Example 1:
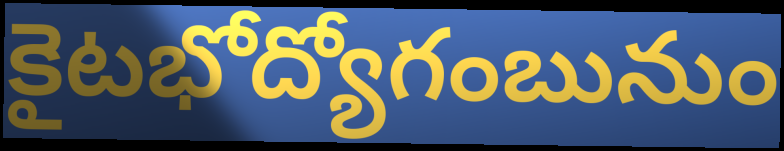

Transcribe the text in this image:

కైటభోద్యోగంబునుం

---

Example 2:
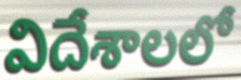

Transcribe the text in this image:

విదేశాలలో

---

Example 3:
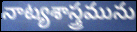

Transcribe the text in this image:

నాట్యశాస్త్రమును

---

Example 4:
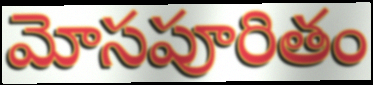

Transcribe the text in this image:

మోసపూరితం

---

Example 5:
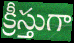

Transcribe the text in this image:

క్రీస్తుగా